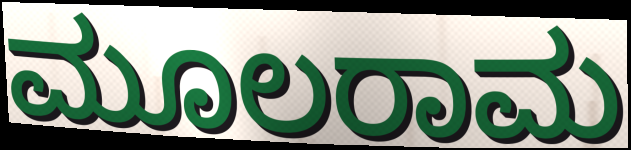
ಮೂಲರಾಮ